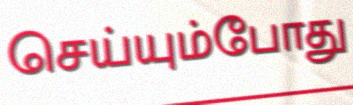
செய்யும்போது